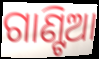
ଗାଣ୍ଟିଆ